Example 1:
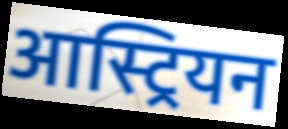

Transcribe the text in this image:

आस्ट्रियन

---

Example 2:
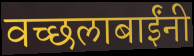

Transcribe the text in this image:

वच्छलाबाईंनी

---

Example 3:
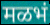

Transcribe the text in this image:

मळभं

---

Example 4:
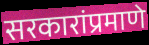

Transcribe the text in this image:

सरकारांप्रमाणे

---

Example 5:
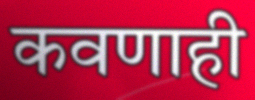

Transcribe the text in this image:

कवणाही